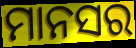
ମାନସର